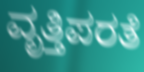
ವೃತ್ತಿಪರತೆ